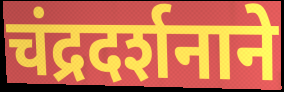
चंद्रदर्शनाने